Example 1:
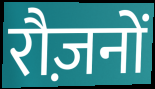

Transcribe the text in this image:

रौज़नों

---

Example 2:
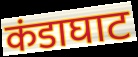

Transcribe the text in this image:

कंडाघाट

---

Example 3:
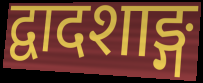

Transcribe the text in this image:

द्वादशाङ्ग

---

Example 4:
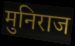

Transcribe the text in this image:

मुनिराज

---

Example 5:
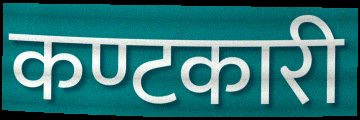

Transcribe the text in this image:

कण्टकारी